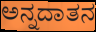
ಅನ್ನದಾತನ